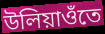
উলিয়াওঁতে